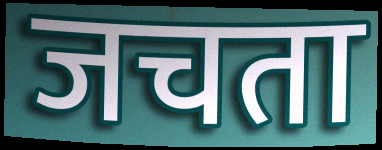
जचता